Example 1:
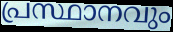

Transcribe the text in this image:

പ്രസ്ഥാനവും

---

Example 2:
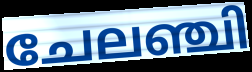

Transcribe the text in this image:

ചേലഞ്ചി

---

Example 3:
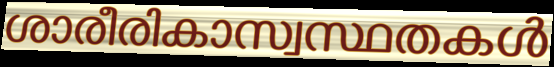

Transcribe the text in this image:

ശാരീരികാസ്വസ്ഥതകൾ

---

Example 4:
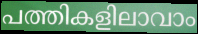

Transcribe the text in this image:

പത്തികളിലാവാം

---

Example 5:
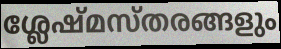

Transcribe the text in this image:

ശ്ലേഷ്മസ്തരങ്ങളും